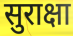
सुराक्षा